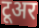
टूअर